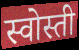
स्वोस्ती